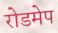
रोडमेप